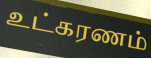
உட்கரணம்